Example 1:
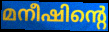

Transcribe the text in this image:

മനീഷിന്റെ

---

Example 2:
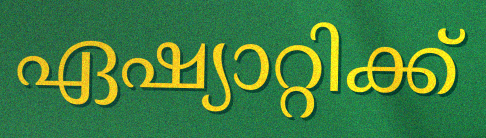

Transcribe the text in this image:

ഏഷ്യാറ്റിക്ക്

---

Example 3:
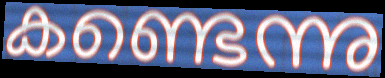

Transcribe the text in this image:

കണ്ടെന്നു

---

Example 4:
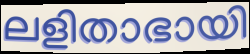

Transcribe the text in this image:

ലളിതാഭായി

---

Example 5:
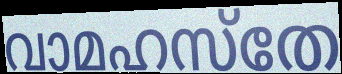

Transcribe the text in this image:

വാമഹസ്തേ